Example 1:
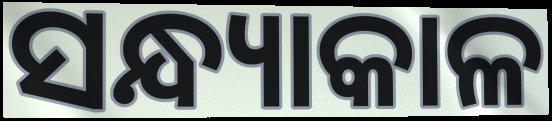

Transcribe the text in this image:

ସନ୍ଧ୍ୟାକାଳ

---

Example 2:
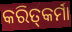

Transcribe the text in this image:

କରିତ୍‍କର୍ମା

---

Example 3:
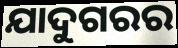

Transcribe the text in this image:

ଯାଦୁଗରର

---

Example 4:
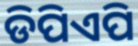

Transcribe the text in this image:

ଡିପିଏପି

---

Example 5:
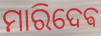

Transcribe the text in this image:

ମାରିଦେଵ